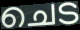
ചെട